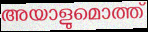
അയാളുമൊത്ത്